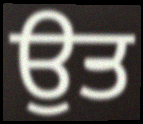
ਉਤ